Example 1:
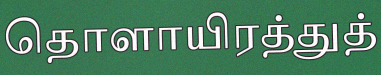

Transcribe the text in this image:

தொளாயிரத்துத்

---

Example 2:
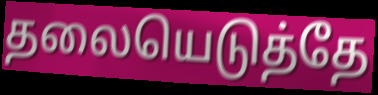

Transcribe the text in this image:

தலையெடுத்தே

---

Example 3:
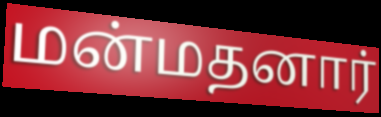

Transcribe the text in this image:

மன்மதனார்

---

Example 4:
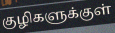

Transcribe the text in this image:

குழிகளுக்குள்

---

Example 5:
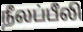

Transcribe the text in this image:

நீலப்பீலி